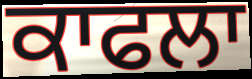
ਕਾਫਲਾ